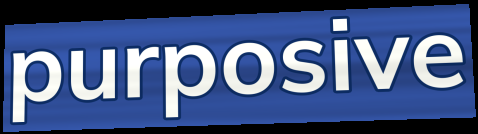
purposive